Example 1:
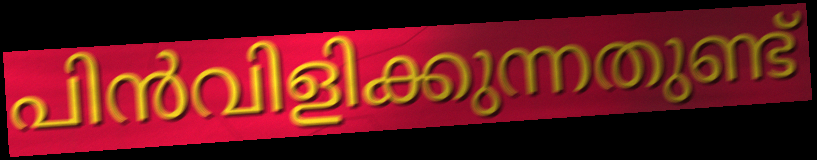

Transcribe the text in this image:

പിൻവിളിക്കുന്നതുണ്ട്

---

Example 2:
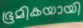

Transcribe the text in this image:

ഭൂമികയായി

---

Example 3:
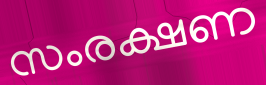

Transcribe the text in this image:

സംരക്ഷണ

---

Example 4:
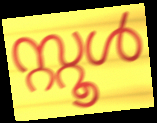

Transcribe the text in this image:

സ്റ്റൂൾ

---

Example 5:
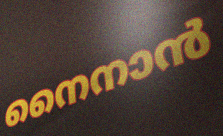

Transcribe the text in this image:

നൈനാൻ